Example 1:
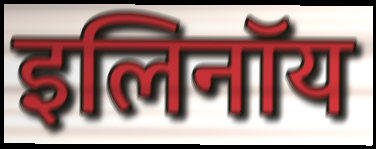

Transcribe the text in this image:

इलिनॉय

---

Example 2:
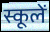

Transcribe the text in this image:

स्कूलें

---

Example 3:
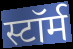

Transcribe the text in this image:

स्टॉर्म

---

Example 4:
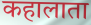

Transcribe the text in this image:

कहालाता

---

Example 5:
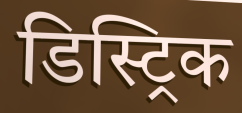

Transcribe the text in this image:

डिस्ट्रिक